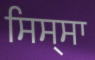
ਸਿਸ੍ਸਾ